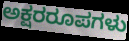
ಅಕ್ಷರರೂಪಗಳು